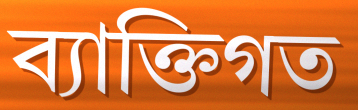
ব্যাক্তিগত